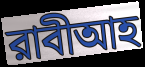
রাবীআহ